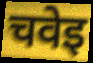
चवेइ